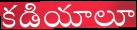
కడియాలూ